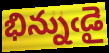
భిన్నుఁడై